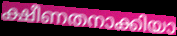
ക്ഷീണതനാക്കിയാ